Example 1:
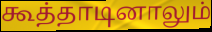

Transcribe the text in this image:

கூத்தாடினாலும்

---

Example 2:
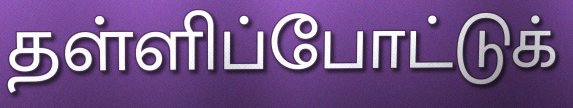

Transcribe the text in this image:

தள்ளிப்போட்டுக்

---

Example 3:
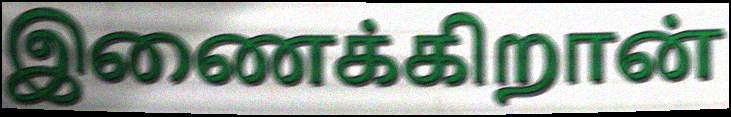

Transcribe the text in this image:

இணைக்கிறான்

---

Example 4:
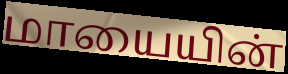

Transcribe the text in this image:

மாயையின்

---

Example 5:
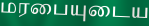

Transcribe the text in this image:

மரபையுடைய